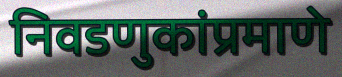
निवडणुकांप्रमाणे